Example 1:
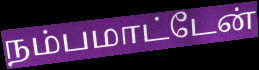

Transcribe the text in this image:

நம்பமாட்டேன்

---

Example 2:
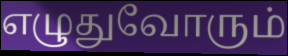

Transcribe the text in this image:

எழுதுவோரும்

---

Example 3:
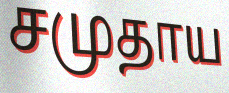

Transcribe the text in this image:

சமுதாய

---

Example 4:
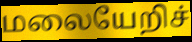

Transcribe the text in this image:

மலையேறிச்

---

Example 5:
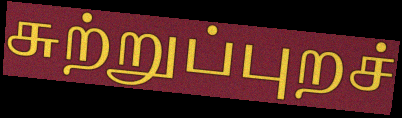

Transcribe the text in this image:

சுற்றுப்புறச்